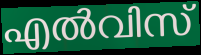
എൽവിസ്